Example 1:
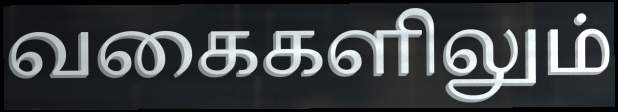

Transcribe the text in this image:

வகைகளிலும்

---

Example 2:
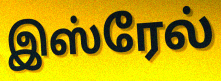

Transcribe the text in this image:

இஸ்ரேல்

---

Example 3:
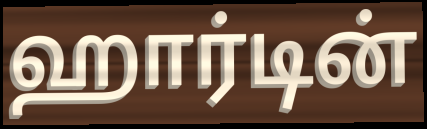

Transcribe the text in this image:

ஹார்டின்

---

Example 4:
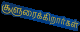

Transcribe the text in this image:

சூளுரைக்கிறார்கள்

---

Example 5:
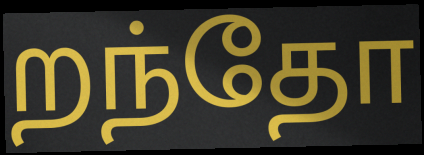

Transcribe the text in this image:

றந்தோ